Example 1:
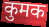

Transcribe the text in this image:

कुमक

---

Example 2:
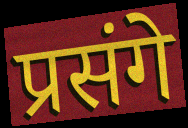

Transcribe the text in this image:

प्रसंगे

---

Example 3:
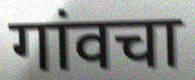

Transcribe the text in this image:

गांवचा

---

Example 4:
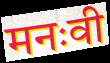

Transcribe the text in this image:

मनःवी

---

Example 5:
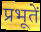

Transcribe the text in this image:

प्रभूतें